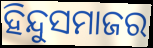
ହିନ୍ଦୁସମାଜର